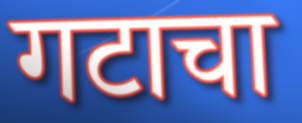
गटाचा